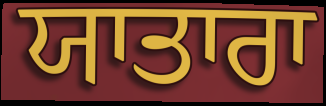
ਯਾਤਾਰਾ